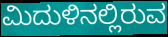
ಮಿದುಳಿನಲ್ಲಿರುವ